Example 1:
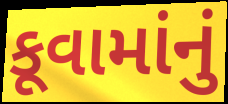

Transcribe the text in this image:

કૂવામાંનું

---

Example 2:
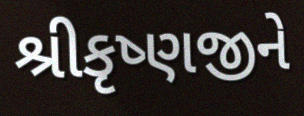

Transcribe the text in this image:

શ્રીકૃષ્ણજીને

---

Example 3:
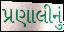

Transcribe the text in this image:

પ્રણાલીનું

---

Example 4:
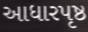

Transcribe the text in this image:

આધારપૃષ્ઠ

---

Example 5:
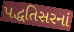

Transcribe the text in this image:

પદ્ધતિસરનાં